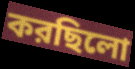
করছিলো